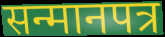
सन्मानपत्र